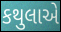
કથુલાએ